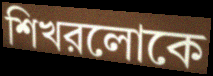
শিখরলোকে